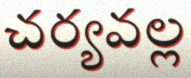
చర్యవల్ల